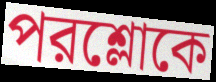
পরশ্লোকে